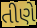
તીણે